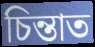
চিন্তাত